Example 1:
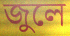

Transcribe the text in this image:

জুলে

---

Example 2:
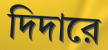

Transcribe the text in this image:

দিদারে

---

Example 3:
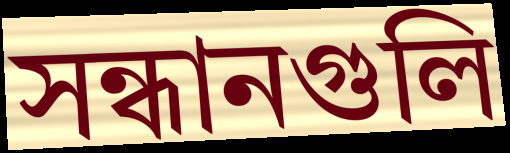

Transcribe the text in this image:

সন্ধানগুলি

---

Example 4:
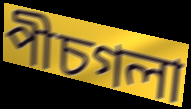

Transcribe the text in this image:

পীচগলা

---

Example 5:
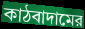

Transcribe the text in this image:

কাঠবাদামের